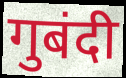
गुबंदी